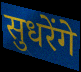
सुधरेंगे